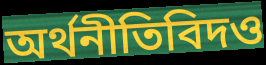
অর্থনীতিবিদও